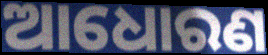
ଆଧୋରଣ